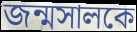
জন্মসালকে